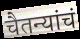
चैतन्यांचं